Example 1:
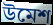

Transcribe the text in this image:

উমেশ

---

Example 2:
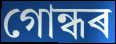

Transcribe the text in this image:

গোন্ধৰ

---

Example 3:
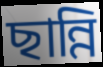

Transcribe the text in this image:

ছান্নি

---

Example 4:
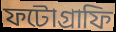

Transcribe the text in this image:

ফটোগ্ৰাফি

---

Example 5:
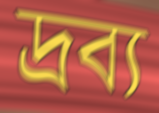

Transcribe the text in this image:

দ্ৰব্য